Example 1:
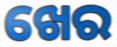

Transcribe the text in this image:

ଖେର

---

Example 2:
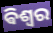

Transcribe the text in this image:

ଵିଶ୍ୱର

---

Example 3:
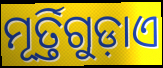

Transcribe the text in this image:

ମୂର୍ତ୍ତିଗୁଡ଼ାଏ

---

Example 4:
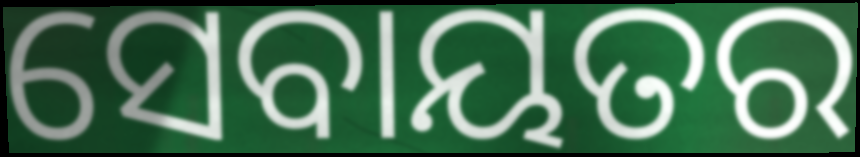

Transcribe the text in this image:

ସେବାୟତର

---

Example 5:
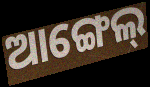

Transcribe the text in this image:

ଆଙ୍ଗେଲ୍